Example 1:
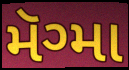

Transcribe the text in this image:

મૅગ્મા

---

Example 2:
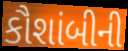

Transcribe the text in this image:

કૌશાંબીની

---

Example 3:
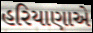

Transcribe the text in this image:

હરિયાણાએ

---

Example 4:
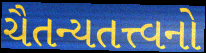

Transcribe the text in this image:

ચૈતન્યતત્ત્વનો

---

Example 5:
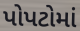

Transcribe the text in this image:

પોપટોમાં